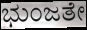
ಭುಂಜತೇ